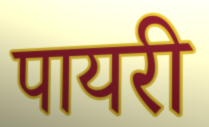
पायरी